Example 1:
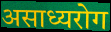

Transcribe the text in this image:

असाध्यरोग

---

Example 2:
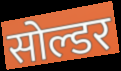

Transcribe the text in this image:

सोल्डर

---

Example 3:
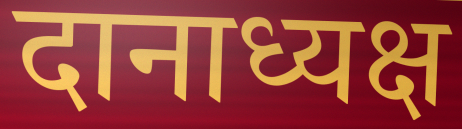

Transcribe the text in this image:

दानाध्यक्ष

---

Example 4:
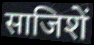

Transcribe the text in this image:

साजिशें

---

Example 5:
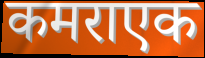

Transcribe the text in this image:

कमराएक